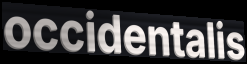
occidentalis